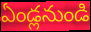
ఏండ్లనుండి